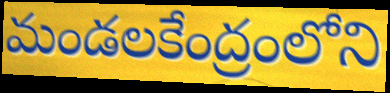
మండలకేంద్రంలోని